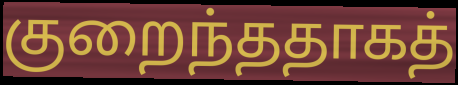
குறைந்ததாகத்